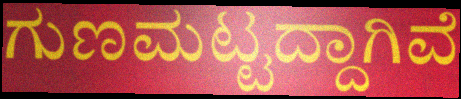
ಗುಣಮಟ್ಟದ್ದಾಗಿವೆ